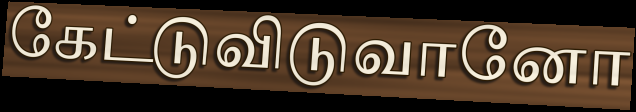
கேட்டுவிடுவானோ